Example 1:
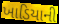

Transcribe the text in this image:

ખાડિયાની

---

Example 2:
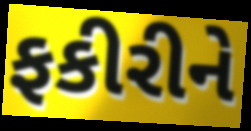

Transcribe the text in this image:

ફકીરીને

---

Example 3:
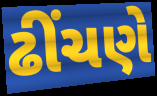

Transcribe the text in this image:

ઢીંચણે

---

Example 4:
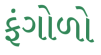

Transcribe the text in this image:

ફંગોળો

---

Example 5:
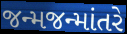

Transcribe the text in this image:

જન્મજન્માંતરે